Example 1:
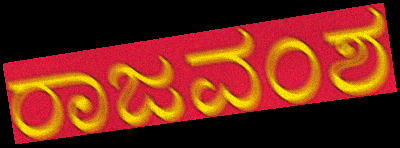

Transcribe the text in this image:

ರಾಜವಂಶ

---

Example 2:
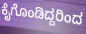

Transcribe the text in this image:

ಕೈಗೊಂಡಿದ್ದರಿಂದ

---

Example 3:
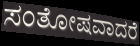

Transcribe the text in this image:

ಸಂತೋಷವಾದರೆ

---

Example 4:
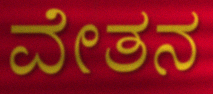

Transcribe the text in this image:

ವೇತನ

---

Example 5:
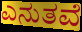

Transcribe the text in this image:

ಎನುತವೆ